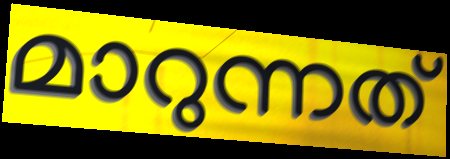
മാറുന്നത്